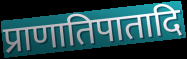
प्राणातिपातादि